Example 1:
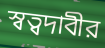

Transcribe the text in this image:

স্বত্বদাবীর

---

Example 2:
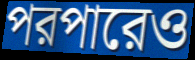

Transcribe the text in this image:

পরপারেও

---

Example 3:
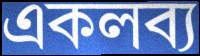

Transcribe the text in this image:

একলব্য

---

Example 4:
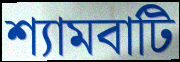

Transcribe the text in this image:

শ্যামবাটি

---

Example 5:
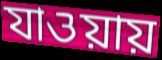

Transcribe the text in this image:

যাওয়ায়